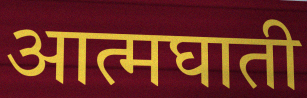
आत्मघाती